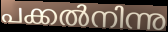
പക്കൽനിന്നു